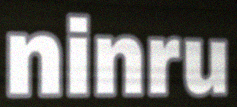
ninru